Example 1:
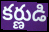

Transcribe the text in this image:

కర్ణుడి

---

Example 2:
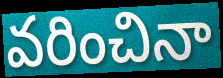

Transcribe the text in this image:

వరించినా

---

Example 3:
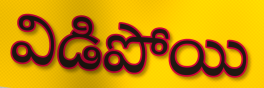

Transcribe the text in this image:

విడిపోయి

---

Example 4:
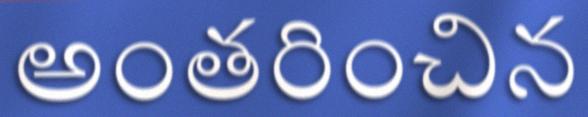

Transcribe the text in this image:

అంతరించిన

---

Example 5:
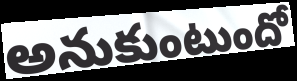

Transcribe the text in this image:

అనుకుంటుందో